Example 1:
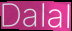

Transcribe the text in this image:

Dalal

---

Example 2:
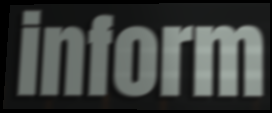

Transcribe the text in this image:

inform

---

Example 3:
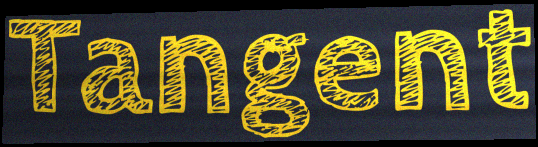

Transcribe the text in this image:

Tangent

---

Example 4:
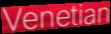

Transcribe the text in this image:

Venetian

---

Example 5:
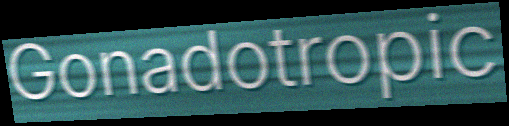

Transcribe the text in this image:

Gonadotropic